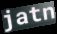
jatn